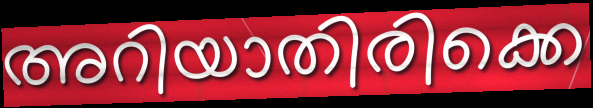
അറിയാതിരിക്കെ